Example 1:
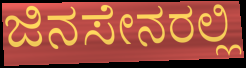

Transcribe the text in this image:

ಜಿನಸೇನರಲ್ಲಿ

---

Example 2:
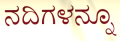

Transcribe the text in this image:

ನದಿಗಳನ್ನೂ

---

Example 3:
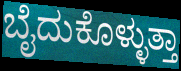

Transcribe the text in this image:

ಬೈದುಕೊಳ್ಳುತ್ತಾ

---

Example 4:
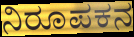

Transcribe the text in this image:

ನಿರೂಪಕನ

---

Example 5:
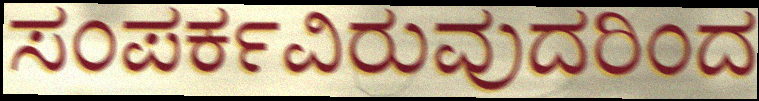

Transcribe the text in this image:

ಸಂಪರ್ಕವಿರುವುದರಿಂದ